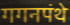
गगनपंथे